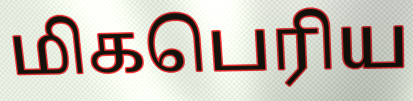
மிகபெரிய